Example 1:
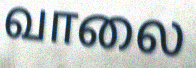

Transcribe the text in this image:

வாலை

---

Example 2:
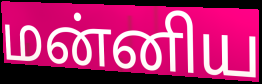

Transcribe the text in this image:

மன்னிய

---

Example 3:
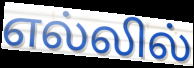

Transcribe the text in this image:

எல்லில்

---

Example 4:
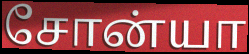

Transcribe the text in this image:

சோன்யா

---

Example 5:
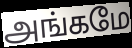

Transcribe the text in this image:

அங்கமே